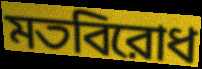
মতবিরোধ